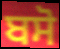
ਬਸੋ